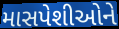
માસપેશીઓને